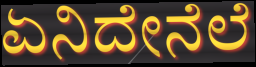
ಏನಿದೇನೆಲೆ